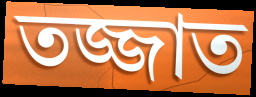
তজ্জাত